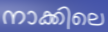
നാക്കിലെ